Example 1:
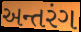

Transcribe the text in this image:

અન્તરંગ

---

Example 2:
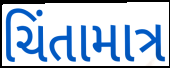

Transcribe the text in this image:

ચિંતામાત્ર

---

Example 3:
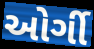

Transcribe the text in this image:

ઓર્ગી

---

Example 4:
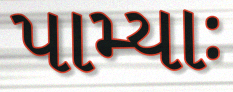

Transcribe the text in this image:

પામ્યાઃ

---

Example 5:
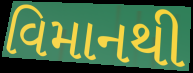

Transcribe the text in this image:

વિમાનથી